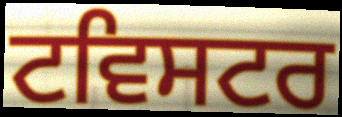
ਟਵਿਸਟਰ